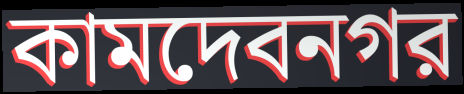
কামদেবনগর